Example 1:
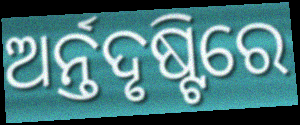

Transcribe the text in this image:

ଅର୍ନ୍ତଦୃଷ୍ଟିରେ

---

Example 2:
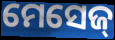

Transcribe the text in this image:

ମେସେଜ୍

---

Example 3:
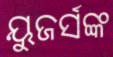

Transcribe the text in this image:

ୟୁଜର୍ସଙ୍କ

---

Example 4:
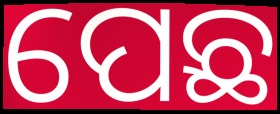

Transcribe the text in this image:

ପେଛ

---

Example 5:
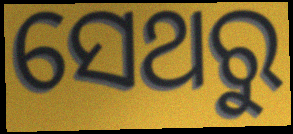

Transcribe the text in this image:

ସେଥରୁ